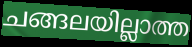
ചങ്ങലയില്ലാത്ത